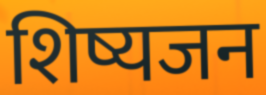
शिष्यजन